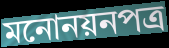
মনোনয়নপত্র